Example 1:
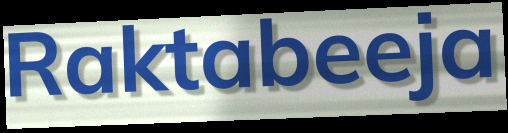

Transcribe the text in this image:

Raktabeeja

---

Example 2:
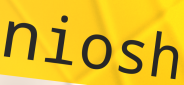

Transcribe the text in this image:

niosh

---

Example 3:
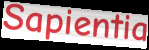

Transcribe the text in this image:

Sapientia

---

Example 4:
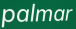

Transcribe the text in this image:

palmar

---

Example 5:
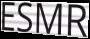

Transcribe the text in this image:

ESMR